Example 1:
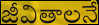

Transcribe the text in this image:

జీవితాలనే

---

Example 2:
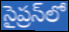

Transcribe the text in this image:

సైప్రస్‌లో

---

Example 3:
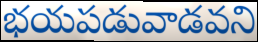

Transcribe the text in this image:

భయపడువాడవని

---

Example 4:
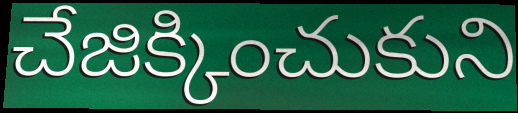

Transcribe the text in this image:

చేజిక్కించుకుని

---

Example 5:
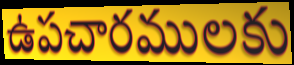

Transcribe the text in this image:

ఉపచారములకు